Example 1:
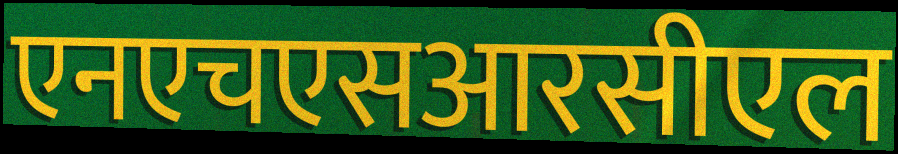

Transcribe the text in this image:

एनएचएसआरसीएल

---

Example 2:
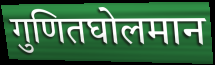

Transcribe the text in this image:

गुणितघोलमान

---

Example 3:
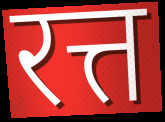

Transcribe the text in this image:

रत्त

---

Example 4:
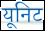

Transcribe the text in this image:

यूनिट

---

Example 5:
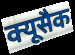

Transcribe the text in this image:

क्यूसैक